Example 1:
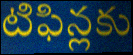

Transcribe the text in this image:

టిఫిన్లకు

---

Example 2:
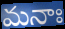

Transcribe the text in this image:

మనాః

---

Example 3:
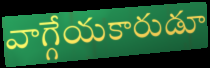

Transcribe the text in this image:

వాగ్గేయకారుడూ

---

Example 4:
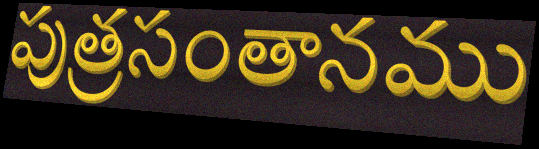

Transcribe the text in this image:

పుత్రసంతానము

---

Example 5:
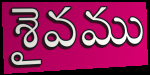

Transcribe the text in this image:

శైవము